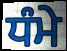
ਧੰਮੇ